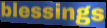
blessings